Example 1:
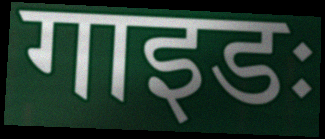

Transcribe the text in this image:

गाइडः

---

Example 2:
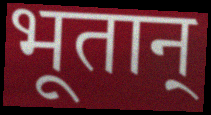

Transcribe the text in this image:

भूतान्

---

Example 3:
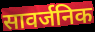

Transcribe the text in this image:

सावर्जनिक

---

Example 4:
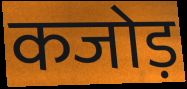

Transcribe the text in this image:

कजोड़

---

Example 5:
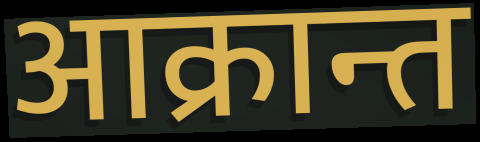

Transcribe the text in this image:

आक्रान्त